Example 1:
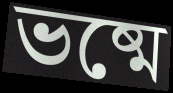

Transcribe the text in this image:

ভষ্মে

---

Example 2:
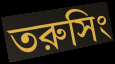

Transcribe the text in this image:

তরুসিং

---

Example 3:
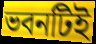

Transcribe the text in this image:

ভবনটিই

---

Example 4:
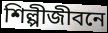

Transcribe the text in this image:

শিল্পীজীবনে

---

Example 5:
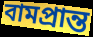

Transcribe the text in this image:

বামপ্রান্ত